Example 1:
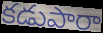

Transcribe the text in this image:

కడుపారా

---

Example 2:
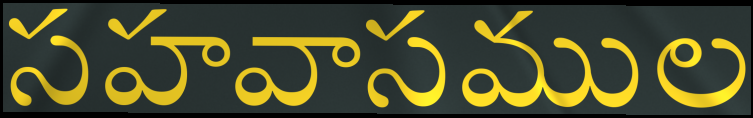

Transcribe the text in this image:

సహవాసముల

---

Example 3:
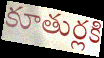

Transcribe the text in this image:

కూతుర్లకి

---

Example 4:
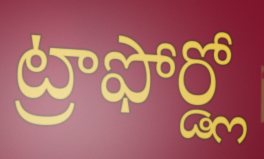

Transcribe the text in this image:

ట్రాఫోర్డ్లో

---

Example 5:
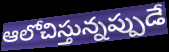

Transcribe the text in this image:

ఆలోచిస్తున్నప్పుడే